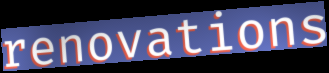
renovations